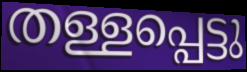
തള്ളപ്പെട്ടു